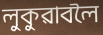
লুকুৱাবলৈ